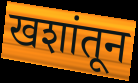
खशांतून